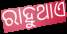
ରାହୁଥାଏ